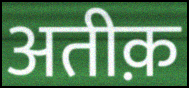
अतीक़